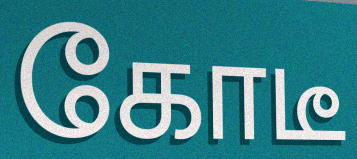
கோடீ